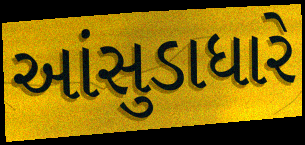
આંસુડાધારે